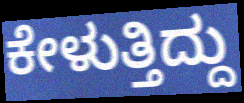
ಕೇಳುತ್ತಿದ್ದು